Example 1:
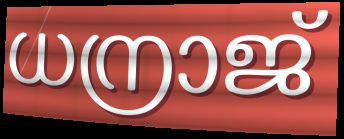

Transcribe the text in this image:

ധന്രാജ്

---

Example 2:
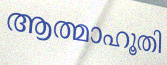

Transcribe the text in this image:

ആത്മാഹൂതി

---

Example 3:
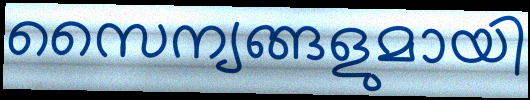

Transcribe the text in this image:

സൈന്യങ്ങളുമായി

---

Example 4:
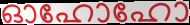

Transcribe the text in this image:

ഓഹോഹോ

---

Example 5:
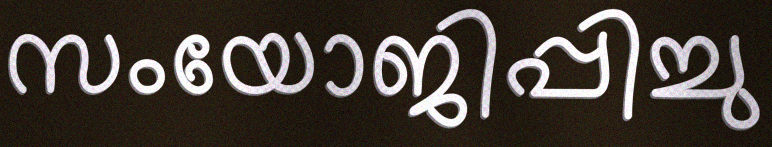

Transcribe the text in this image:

സംയോജിപ്പിച്ചു